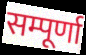
सम्पूर्णा